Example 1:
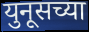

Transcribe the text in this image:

युनूसच्या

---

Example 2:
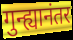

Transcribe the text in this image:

गुन्ह्यानंतर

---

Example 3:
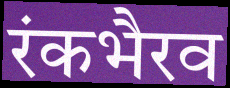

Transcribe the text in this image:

रंकभैरव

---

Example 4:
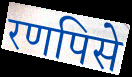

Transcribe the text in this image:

रणपिसे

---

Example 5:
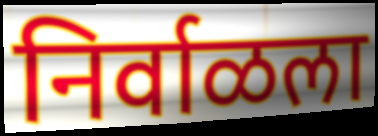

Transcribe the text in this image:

निर्वाळला